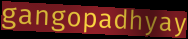
gangopadhyay